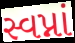
સ્વપ્નાં